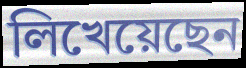
লিখেয়েছেন